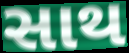
સાથ